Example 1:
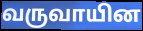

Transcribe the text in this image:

வருவாயின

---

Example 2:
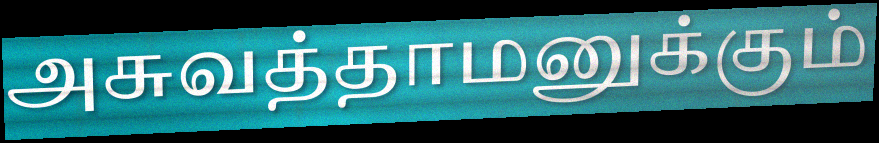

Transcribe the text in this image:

அசுவத்தாமனுக்கும்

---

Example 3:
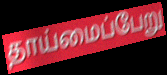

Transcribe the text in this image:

தாய்மைப்பேறு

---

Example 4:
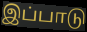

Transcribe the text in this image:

இப்பாடு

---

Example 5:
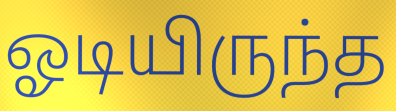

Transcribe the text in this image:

ஓடியிருந்த